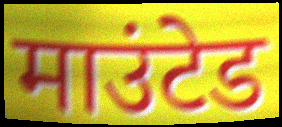
माउंटेड